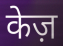
केज़